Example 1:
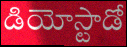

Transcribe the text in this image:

డియోస్టాడో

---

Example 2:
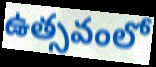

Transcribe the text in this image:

ఉత్సవంలో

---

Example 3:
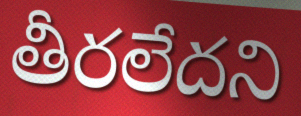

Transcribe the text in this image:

తీరలేదని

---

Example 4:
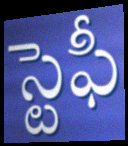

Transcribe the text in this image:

స్టెఫీ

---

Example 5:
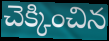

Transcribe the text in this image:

చెక్కించిన